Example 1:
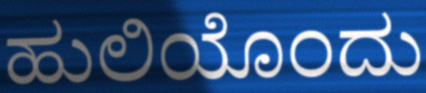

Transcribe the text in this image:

ಹುಲಿಯೊಂದು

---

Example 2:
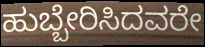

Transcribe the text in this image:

ಹುಬ್ಬೇರಿಸಿದವರೇ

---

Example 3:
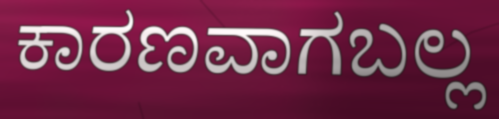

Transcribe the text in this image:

ಕಾರಣವಾಗಬಲ್ಲ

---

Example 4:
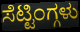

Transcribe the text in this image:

ಸೆಟ್ಟಿಂಗ್ಗಳು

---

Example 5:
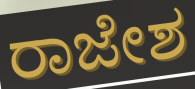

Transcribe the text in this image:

ರಾಜೇಶ